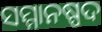
ସମ୍ମାନଷ୍ପଦ